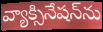
వ్యాక్సినేషన్‌ను